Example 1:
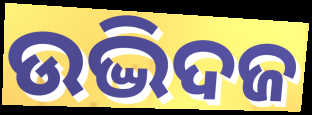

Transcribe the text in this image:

ଉଦ୍ଭିଦଜ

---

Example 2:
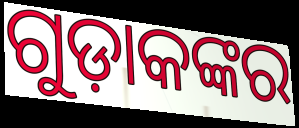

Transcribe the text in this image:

ଗୁଡ଼ାକଙ୍କର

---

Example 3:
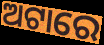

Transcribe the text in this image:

ଅଟାରେ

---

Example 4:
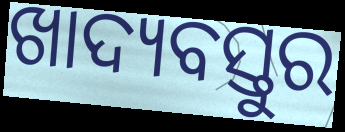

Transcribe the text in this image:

ଖାଦ୍ୟବସ୍ତୁର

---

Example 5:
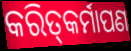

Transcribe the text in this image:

କରିତ୍‌କର୍ମାପଣ